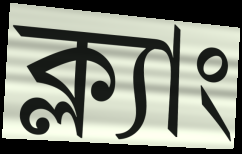
ক্ল্যাং